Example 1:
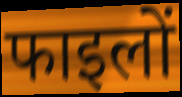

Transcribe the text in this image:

फाइलों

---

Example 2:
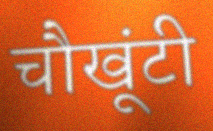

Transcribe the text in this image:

चौखूंटी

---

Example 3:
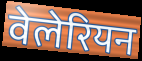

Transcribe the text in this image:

वेलेरियन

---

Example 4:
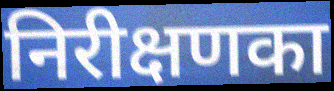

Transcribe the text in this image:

निरीक्षणका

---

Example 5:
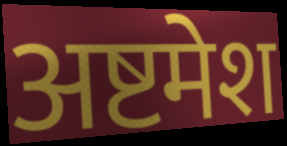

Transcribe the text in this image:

अष्टमेश